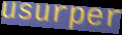
usurper